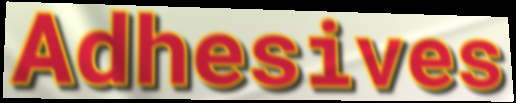
Adhesives